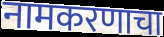
नामकरणाचा